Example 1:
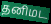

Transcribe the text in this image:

தனிமட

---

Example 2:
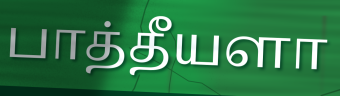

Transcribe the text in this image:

பாத்தீயளா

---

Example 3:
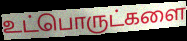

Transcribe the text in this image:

உட்பொருட்களை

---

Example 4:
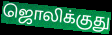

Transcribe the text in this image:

ஜொலிக்குது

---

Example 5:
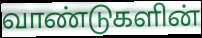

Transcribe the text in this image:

வாண்டுகளின்